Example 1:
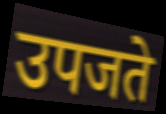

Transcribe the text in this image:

उपजते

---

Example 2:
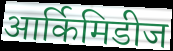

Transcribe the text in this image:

आर्किमिडीज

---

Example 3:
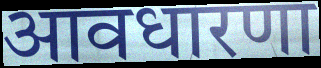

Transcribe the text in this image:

आवधारणा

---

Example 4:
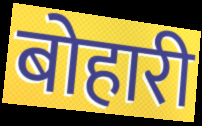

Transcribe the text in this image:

बोहारी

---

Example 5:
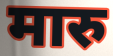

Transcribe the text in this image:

मारु